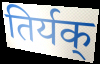
तिर्यक्